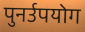
पुनर्उपयोग